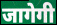
जागेगी